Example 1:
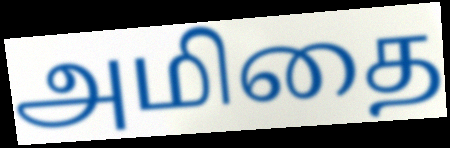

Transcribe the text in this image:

அமிதை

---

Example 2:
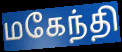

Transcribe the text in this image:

மகேந்தி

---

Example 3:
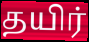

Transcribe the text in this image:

தயிர்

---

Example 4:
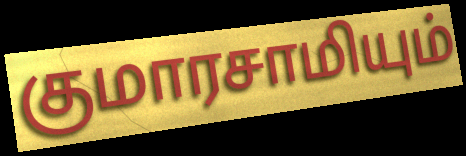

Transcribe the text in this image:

குமாரசாமியும்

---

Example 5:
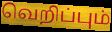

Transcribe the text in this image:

வெறிப்பும்